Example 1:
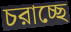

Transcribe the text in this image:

চরাচ্ছে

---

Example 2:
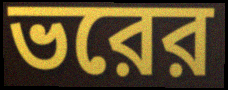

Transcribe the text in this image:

ভরের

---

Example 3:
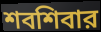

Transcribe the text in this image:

শবশিবার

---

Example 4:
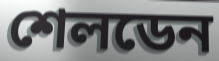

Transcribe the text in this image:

শেলডেন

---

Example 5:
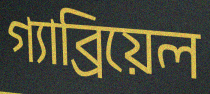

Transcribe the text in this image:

গ্যাব্রিয়েল